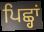
ਪਿਛ੍ਹਾਂ